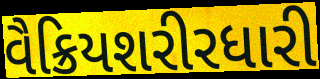
વૈક્રિયશરીરધારી